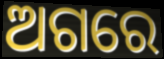
ଅଗରେ